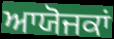
ਆਯੋਜਕਾਂ